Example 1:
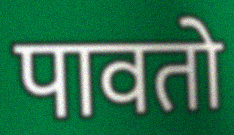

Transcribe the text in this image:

पावतो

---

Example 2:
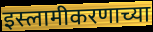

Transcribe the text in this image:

इस्लामीकरणाच्या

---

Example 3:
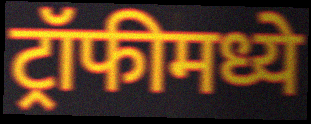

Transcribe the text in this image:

ट्रॉफीमध्ये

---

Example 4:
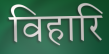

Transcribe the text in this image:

विहारि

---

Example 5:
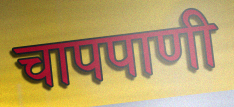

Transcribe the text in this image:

चापपाणी